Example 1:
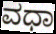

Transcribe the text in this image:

ವಧಾ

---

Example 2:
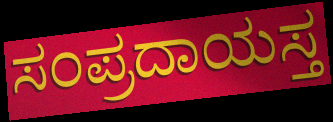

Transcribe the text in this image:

ಸಂಪ್ರದಾಯಸ್ತ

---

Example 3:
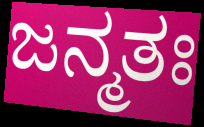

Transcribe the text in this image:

ಜನ್ಮತಃ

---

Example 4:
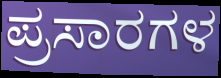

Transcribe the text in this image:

ಪ್ರಸಾರಗಳ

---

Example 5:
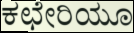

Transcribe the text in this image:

ಕಛೇರಿಯೂ